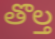
తొల్త